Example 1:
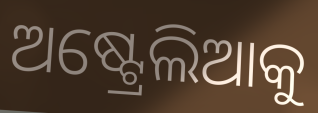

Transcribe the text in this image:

ଅଷ୍ଟ୍ରେଲିଆକୁ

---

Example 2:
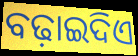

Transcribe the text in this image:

ବଢ଼ାଇଦିଏ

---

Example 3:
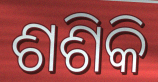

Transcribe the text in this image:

ଶଶିକି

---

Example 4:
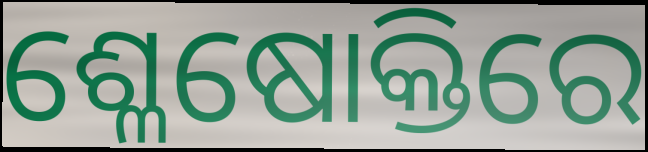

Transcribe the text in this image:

ଶ୍ଳେଷୋକ୍ତିରେ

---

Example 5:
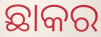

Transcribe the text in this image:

ଛାକର